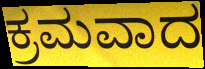
ಕ್ರಮವಾದ